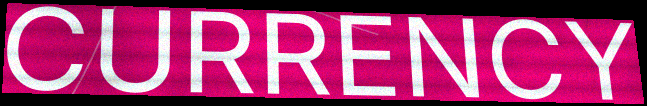
CURRENCY